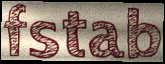
fstab